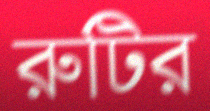
রুটির